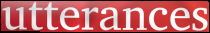
utterances